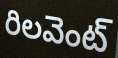
రిలవెంట్